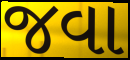
જવા